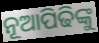
ନୂଆପିଢିଙ୍କୁ